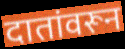
दातांवरून